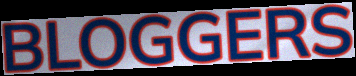
BLOGGERS